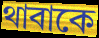
থাবাকে